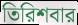
তিরিশবার